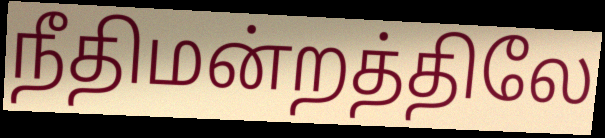
நீதிமன்றத்திலே